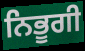
ਨਿਭੂਗੀ